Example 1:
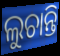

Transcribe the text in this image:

ଲୁଚାନ୍ତି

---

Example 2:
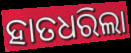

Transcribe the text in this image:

ହାତଧରିଲା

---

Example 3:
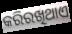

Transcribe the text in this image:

କରିରଖିଥାଏ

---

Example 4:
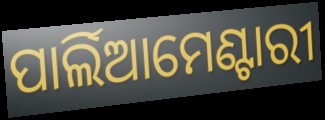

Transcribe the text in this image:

ପାର୍ଲିଆମେଣ୍ଟାରୀ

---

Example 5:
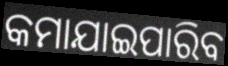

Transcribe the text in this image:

କମାଯାଇପାରିବ